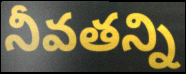
నీవతన్ని